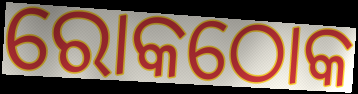
ରୋକଠୋକ